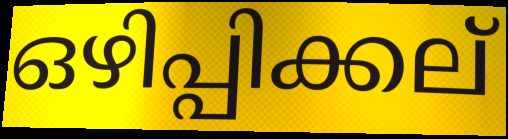
ഒഴിപ്പിക്കല്